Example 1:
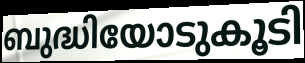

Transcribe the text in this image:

ബുദ്ധിയോടുകൂടി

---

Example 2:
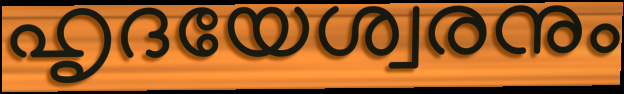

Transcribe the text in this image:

ഹൃദയേശ്വരനും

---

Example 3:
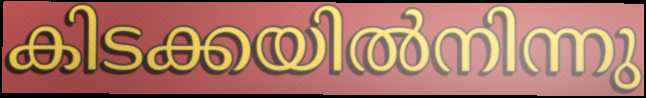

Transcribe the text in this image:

കിടക്കയിൽനിന്നു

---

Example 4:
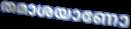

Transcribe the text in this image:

തമാശയാണോ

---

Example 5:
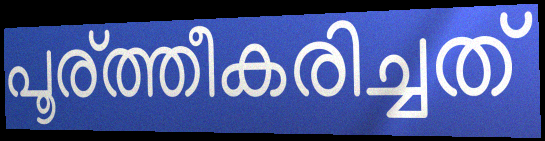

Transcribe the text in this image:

പൂര്ത്തീകരിച്ചത്